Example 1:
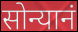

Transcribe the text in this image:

सोन्यानं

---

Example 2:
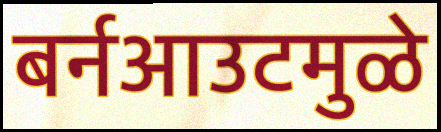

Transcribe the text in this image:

बर्नआउटमुळे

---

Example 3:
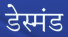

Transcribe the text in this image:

डेस्मंड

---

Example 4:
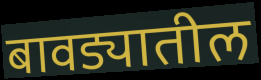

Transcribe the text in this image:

बावड्यातील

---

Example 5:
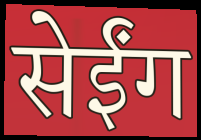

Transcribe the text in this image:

सेईंग